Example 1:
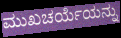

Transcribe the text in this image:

ಮುಖಚರ್ಯೆಯನ್ನು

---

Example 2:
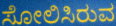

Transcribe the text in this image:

ಸೋಲಿಸಿರುವ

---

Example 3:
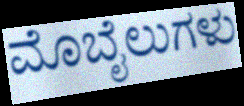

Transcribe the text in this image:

ಮೊಬೈಲುಗಳು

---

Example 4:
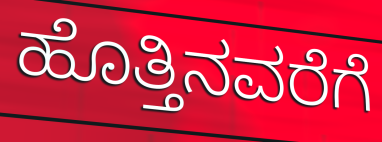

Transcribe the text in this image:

ಹೊತ್ತಿನವರೆಗೆ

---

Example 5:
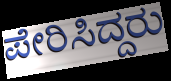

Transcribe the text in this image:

ಪೇರಿಸಿದ್ದರು